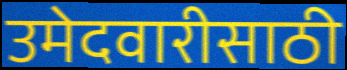
उमेदवारीसाठी